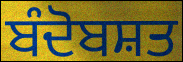
ਬੰਦੋਬਸ਼ਤ